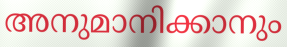
അനുമാനിക്കാനും